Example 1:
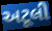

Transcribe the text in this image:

અટૂલી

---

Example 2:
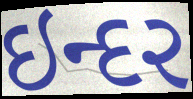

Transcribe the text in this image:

ઇન્દર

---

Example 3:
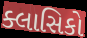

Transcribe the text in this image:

ક્લાસિકો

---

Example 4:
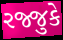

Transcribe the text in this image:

રજ્જુકે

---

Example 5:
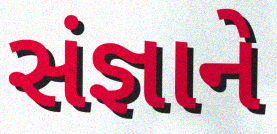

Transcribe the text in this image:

સંજ્ઞાને